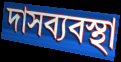
দাসব্যবস্থা